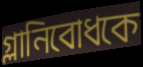
গ্লানিবোধকে